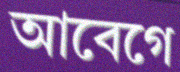
আবেগে